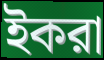
ইকরা